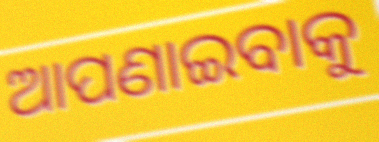
ଆପଣାଇବାକୁ